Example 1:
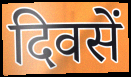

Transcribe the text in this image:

दिवसें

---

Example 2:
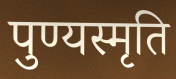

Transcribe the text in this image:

पुण्यस्मृति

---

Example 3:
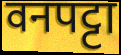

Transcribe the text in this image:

वनपट्टा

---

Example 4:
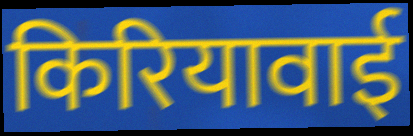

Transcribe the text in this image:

किरियावाई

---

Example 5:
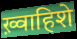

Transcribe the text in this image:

ख़्वाहिशे